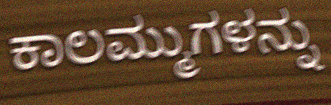
ಕಾಲಮ್ಮುಗಳನ್ನು